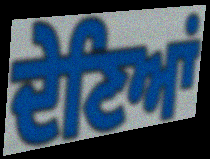
ਦੇਣਿਆਂ